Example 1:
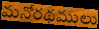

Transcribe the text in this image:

మనోరథములు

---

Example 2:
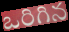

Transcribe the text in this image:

ఒరిగిన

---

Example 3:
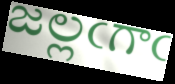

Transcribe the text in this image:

జల్లఁగాఁ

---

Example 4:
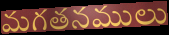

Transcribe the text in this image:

మగతనములు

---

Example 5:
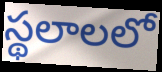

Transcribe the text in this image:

స్థలాలలో